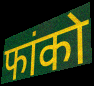
फांको